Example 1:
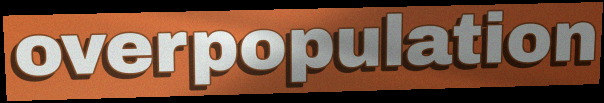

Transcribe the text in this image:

overpopulation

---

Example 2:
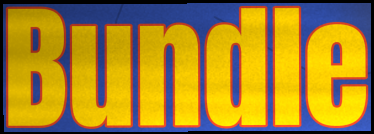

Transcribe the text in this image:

Bundle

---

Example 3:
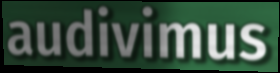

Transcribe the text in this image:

audivimus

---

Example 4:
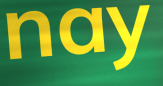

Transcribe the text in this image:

nay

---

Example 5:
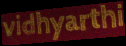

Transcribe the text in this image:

vidhyarthi